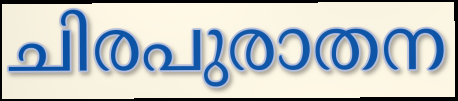
ചിരപുരാതന